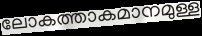
ലോകത്താകമാനമുള്ള